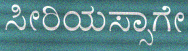
ಸೀರಿಯಸ್ಸಾಗೇ